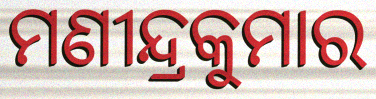
ମଣୀନ୍ଦ୍ରକୁମାର